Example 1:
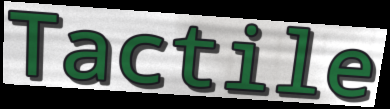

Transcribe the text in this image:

Tactile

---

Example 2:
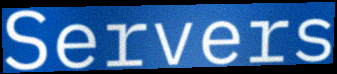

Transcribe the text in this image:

Servers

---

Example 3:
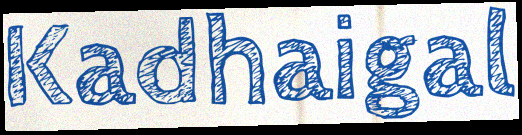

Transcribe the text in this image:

Kadhaigal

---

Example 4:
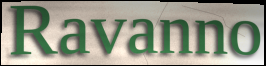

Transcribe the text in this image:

Ravanno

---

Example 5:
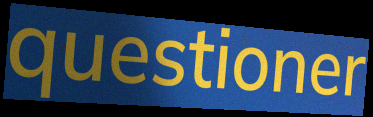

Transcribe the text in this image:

questioner